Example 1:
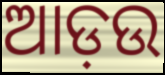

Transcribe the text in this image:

ଆଡ଼ଉ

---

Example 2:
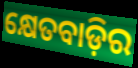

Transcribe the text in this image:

କ୍ଷେତବାଡ଼ିର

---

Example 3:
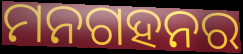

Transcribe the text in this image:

ମନଗହନର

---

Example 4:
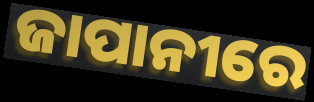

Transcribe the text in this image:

ଜାପାନୀରେ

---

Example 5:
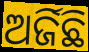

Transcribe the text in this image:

ଅର୍ଜିଛି